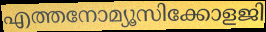
എത്തനോമ്യൂസിക്കോളജി